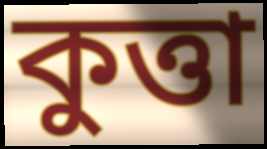
কুত্তা